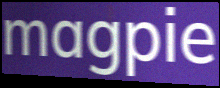
magpie